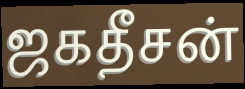
ஜகதீசன்